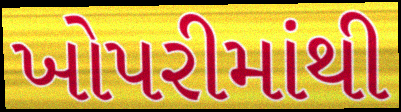
ખોપરીમાંથી